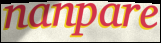
nanpare